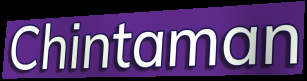
Chintaman